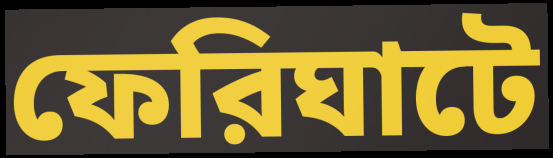
ফেরিঘাটে